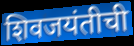
शिवजयंतीची